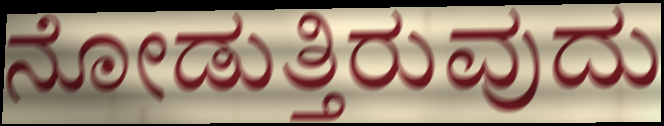
ನೋಡುತ್ತಿರುವುದು